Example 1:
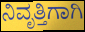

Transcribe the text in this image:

ನಿವೃತ್ತಿಗಾಗಿ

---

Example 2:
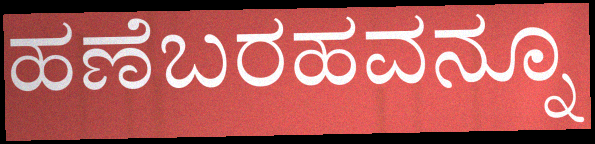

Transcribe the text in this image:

ಹಣೆಬರಹವನ್ನೂ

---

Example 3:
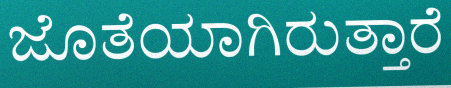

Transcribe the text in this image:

ಜೊತೆಯಾಗಿರುತ್ತಾರೆ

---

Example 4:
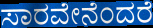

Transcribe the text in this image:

ಸಾರವೇನೆಂದರೆ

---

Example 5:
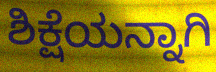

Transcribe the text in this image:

ಶಿಕ್ಷೆಯನ್ನಾಗಿ